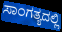
ಸಾಂಗತ್ಯದಲ್ಲಿ